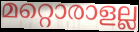
മറ്റൊരാളല്ല